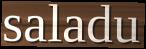
saladu